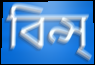
বিন্স্